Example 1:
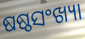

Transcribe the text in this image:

ଷଷ୍ଠସଂଖ୍ୟା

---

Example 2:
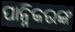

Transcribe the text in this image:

ପାନ୍ନିକରଙ୍କ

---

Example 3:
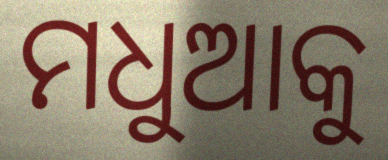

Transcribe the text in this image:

ମଧୁଆକୁ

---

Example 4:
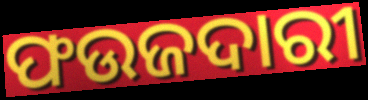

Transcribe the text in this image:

ଫଉଜଦାରୀ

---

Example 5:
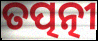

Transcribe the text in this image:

ତତ୍ପତ୍ନୀ